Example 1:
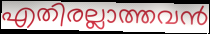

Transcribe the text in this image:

എതിരല്ലാത്തവൻ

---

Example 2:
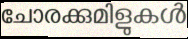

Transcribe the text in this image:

ചോരക്കുമിളുകൾ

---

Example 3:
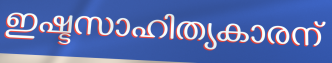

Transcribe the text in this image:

ഇഷ്ടസാഹിത്യകാരന്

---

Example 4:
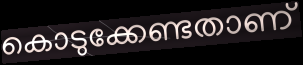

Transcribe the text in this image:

കൊടുക്കേണ്ടതാണ്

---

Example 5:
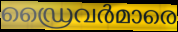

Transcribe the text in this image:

ഡ്രൈവർമാരെ